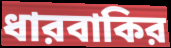
ধারবাকির